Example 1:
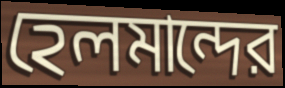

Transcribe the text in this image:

হেলমান্দের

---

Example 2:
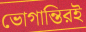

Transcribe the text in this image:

ভোগান্তিরই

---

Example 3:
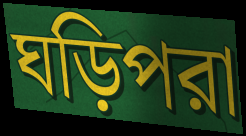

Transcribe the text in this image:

ঘড়িপরা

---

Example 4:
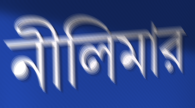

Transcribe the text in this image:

নীলিমার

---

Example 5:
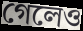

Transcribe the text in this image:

গেলেও